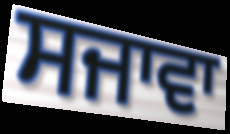
ਸਜਾਵਾ